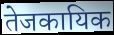
तेजकायिक